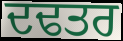
ਦਢਤਰ